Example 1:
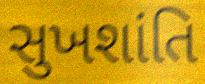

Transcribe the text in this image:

સુખશાંતિ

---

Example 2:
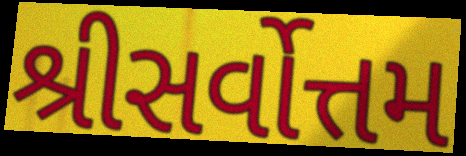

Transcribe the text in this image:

શ્રીસર્વોત્તમ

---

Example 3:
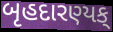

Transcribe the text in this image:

બૃહદારણ્યક્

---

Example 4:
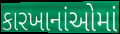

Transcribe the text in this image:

કારખાનાંઓમાં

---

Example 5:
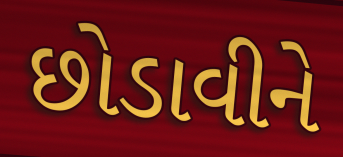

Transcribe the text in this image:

છોડાવીને